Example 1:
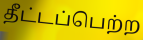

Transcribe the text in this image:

தீட்டப்பெற்ற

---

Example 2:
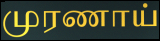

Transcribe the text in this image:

முரணாய்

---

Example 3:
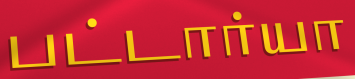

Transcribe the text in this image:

பட்டார்யா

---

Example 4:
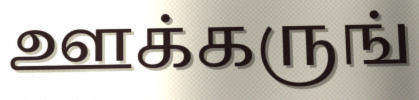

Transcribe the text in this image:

ஊக்கருங்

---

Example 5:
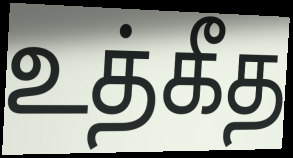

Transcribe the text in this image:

உத்கீத